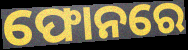
ଫୋନରେ